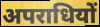
अपराधियों